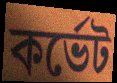
কর্ভেট